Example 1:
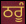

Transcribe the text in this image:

ਠਰੂੰ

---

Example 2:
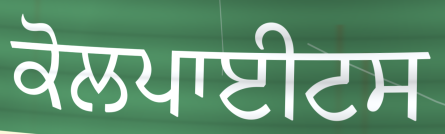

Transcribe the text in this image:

ਕੋਲਪਾਈਟਸ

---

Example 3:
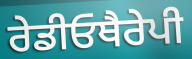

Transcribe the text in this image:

ਰੇਡੀਓਥੈਰੇਪੀ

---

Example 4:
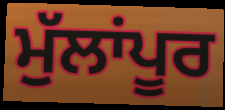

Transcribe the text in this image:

ਮੁੱਲਾਂਪੂਰ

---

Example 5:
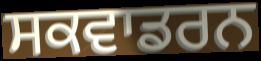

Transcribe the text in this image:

ਸਕਵਾਡਰਨ